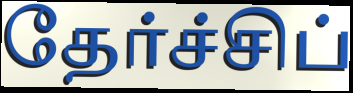
தேர்ச்சிப்